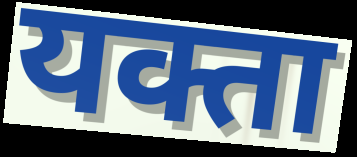
यक्ता